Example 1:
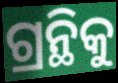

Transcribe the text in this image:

ଗ୍ରନ୍ଥିକୁ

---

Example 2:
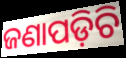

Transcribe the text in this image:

ଜଣାପଡ଼ିଚି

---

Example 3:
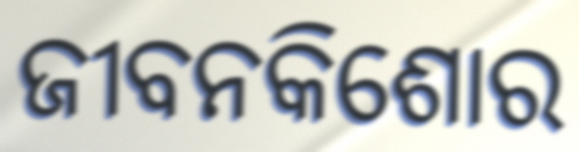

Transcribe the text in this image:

ଜୀବନକିଶୋର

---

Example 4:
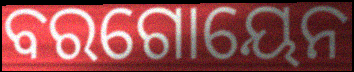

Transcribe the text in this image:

ବରଗୋୟେନ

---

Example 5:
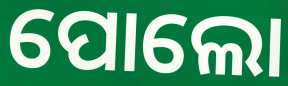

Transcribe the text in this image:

ପୋଲୋ